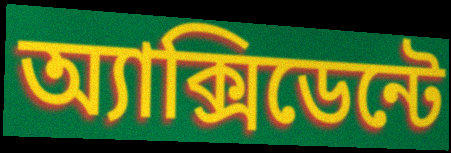
অ্যাক্সিডেন্টে